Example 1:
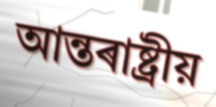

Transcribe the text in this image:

আন্তৰাষ্ট্ৰীয়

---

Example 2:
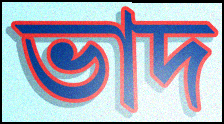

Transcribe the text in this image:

ভাদ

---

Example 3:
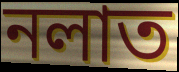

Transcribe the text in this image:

নলাত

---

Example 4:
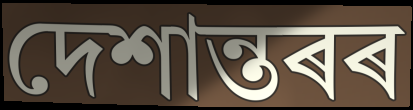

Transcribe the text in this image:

দেশান্তৰৰ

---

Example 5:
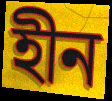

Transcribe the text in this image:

হীন